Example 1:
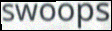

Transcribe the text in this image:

swoops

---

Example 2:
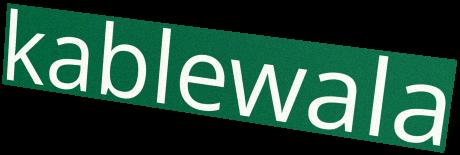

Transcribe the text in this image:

kablewala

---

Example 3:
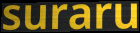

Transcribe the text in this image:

suraru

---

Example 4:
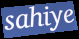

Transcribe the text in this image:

sahiye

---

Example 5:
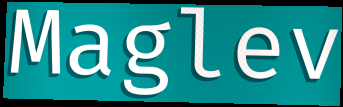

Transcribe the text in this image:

Maglev